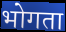
भोगता